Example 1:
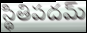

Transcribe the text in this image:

స్థితిపదమ్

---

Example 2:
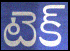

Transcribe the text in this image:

టెక్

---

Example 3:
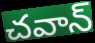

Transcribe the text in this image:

చవాన్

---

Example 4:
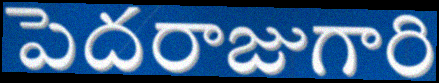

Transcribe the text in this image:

పెదరాజుగారి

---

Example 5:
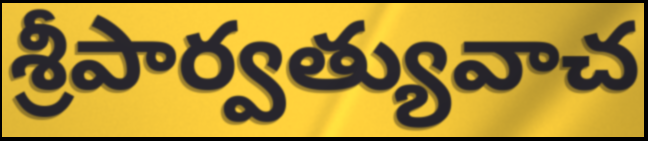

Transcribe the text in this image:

శ్రీపార్వత్యువాచ